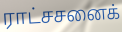
ராட்சசனைக்